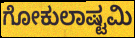
ಗೋಕುಲಾಷ್ಟಮಿ